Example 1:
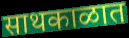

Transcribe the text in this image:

साथकाळात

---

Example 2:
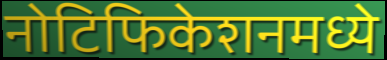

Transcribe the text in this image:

नोटिफिकेशनमध्ये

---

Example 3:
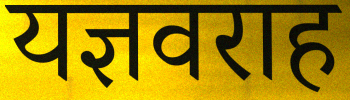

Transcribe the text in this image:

यज्ञवराह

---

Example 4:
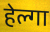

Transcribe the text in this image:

हेल्गा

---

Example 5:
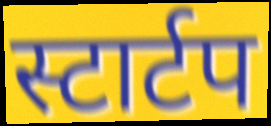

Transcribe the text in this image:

स्टार्टप